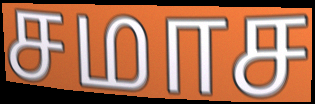
சமாச